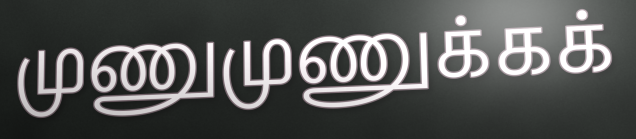
முணுமுணுக்கக்